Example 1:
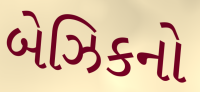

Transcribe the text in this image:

બેઝિકનો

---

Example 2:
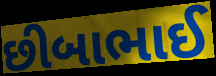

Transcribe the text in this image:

છીબાભાઈ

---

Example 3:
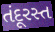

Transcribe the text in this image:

તંદૂરસ્ત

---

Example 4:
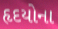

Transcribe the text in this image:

હૃદયોના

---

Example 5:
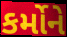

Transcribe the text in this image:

કર્મોને